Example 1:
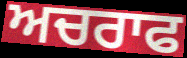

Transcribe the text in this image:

ਅਚਰਾਫ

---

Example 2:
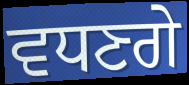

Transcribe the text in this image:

ਵਧਣਗੇ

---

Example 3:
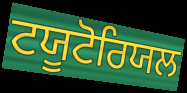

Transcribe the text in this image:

ਟਯੂਟੋਰਿਯਲ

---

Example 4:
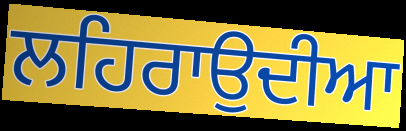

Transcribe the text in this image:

ਲਹਿਰਾਉਦੀਆ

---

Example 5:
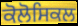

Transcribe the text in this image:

ਕੋਲੋਸਿਕਲ